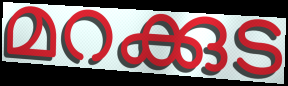
മറക്കുട